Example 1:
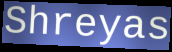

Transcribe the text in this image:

Shreyas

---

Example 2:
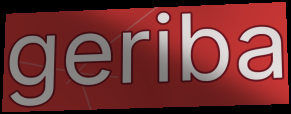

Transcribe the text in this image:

geriba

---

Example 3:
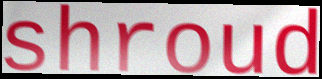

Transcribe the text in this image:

shroud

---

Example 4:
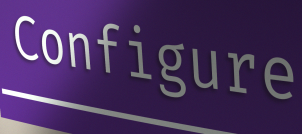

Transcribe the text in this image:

Configure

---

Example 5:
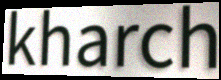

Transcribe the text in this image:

kharch